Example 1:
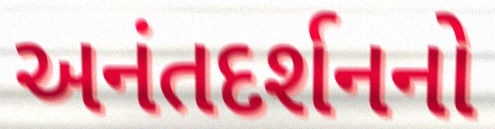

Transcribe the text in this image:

અનંતદર્શનનો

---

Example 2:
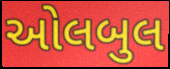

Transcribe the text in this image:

ઓલબુલ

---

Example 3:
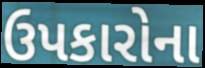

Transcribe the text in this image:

ઉપકારોના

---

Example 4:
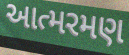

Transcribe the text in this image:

આત્મરમણ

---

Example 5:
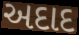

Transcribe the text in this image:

અદાદ